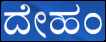
ದೇಹಂ